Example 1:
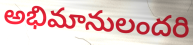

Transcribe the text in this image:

అభిమానులందరి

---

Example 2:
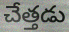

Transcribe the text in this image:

చేత్తడు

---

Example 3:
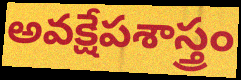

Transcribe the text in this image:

అవక్షేపశాస్త్రం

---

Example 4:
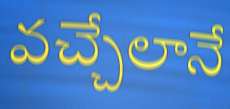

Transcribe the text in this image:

వచ్చేలానే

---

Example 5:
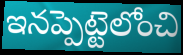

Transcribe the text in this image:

ఇనప్పెట్టెలోంచి